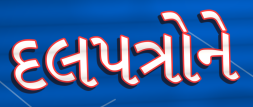
દલપત્રોને